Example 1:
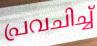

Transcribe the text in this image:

പ്രവചിച്ച്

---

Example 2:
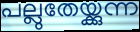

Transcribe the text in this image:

പല്ലുതേയ്ക്കുന്ന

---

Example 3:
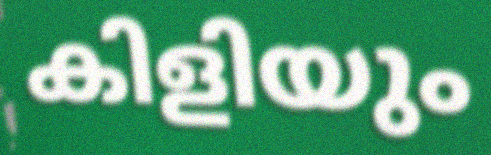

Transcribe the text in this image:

കിളിയും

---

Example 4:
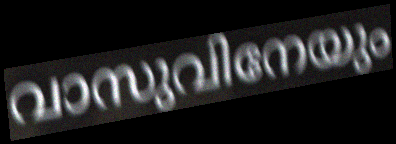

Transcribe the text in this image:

വാസുവിനേയും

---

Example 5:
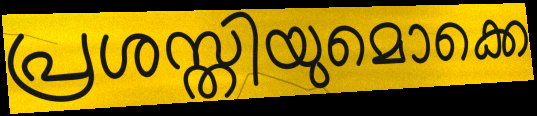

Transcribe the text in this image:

പ്രശസ്തിയുമൊക്കെ